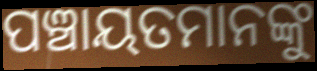
ପଞ୍ଚାୟତମାନଙ୍କୁ